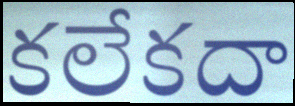
కలేకదా